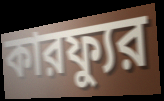
কারফ্যুর